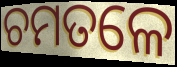
ଚମତଳେ